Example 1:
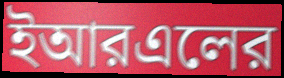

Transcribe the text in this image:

ইআরএলের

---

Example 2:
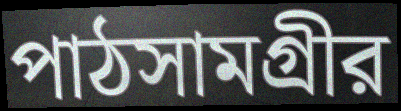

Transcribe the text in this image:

পাঠসামগ্রীর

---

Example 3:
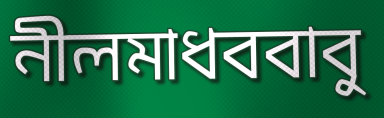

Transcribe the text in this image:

নীলমাধববাবু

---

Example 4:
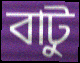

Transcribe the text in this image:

বাটু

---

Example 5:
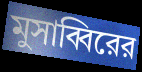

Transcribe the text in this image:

মুসাব্বিরের